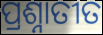
ପ୍ରଶ୍ନାତୀତ